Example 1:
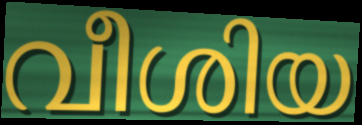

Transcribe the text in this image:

വീശിയ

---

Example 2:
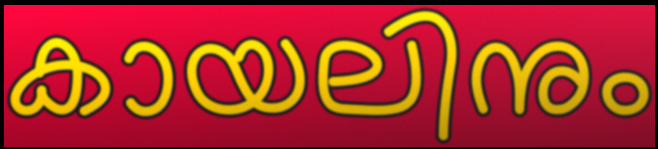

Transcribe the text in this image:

കായലിനും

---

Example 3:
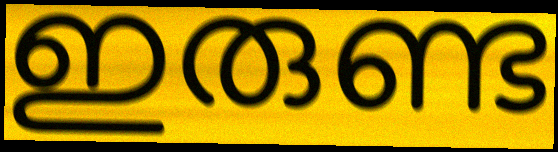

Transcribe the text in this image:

ഇരുണ്ട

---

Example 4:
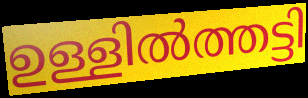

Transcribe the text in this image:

ഉള്ളിൽത്തട്ടി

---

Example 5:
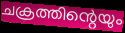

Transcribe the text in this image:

ചക്രത്തിന്റെയും